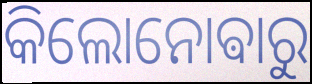
କିଲୋନୋଵାରୁ